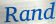
Rand